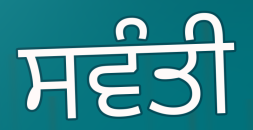
ਸਵੰਤੀ